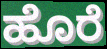
ಹೊರೆ